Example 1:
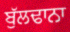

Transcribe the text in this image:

ਬੁੱਲਢਾਨਾ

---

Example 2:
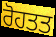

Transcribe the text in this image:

ਰੋਹਤਤ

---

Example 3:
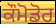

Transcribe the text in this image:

ਕੌਮੋਡੋਰ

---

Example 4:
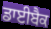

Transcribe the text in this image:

ਡਾਈਬੈਕ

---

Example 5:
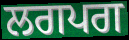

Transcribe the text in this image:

ਲਗਪਗ